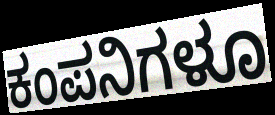
ಕಂಪನಿಗಳೂ